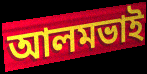
আলমভাই